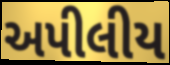
અપીલીય